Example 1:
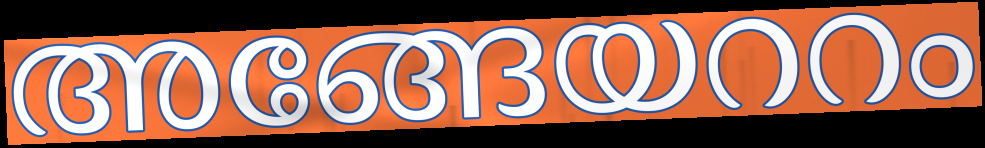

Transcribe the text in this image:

അങ്ങേയററം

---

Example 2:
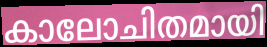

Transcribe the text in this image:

കാലോചിതമായി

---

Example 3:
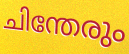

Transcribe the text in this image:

ചിന്തേരും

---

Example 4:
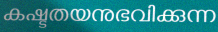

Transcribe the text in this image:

കഷ്ടതയനുഭവിക്കുന്ന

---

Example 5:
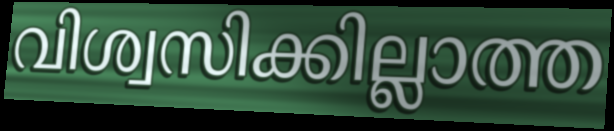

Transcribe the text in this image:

വിശ്വസിക്കില്ലാത്ത